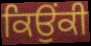
ਕਿਉਂਕੀ